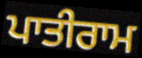
ਪਾਤੀਰਾਮ